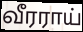
வீரராய்